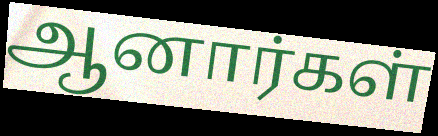
ஆனார்கள்